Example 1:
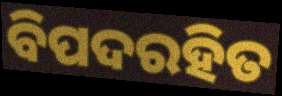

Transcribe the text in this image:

ବିପଦରହିତ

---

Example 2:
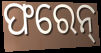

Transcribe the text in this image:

ଫରେନ୍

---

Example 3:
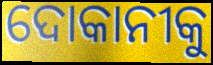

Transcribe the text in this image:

ଦୋକାନୀକୁ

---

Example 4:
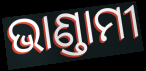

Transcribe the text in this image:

ଭାଣ୍ଡାମୀ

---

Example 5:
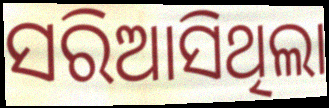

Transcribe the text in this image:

ସରିଆସିଥିଲା